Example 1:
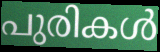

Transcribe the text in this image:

പുരികൾ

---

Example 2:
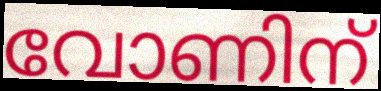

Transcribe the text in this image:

വോണിന്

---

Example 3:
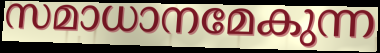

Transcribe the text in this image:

സമാധാനമേകുന്ന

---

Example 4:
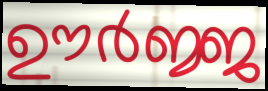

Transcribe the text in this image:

ഊർജ്ജ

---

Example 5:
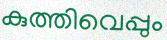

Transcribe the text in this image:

കുത്തിവെപ്പും